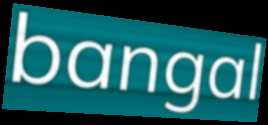
bangal